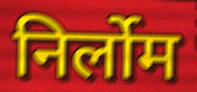
निर्लोम